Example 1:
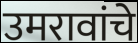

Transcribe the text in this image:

उमरावांचे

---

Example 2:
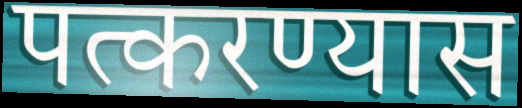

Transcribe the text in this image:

पत्करण्यास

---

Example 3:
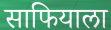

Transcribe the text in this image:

साफियाला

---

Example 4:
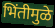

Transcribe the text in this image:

भिंतीमुळे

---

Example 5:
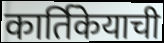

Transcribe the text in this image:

कार्तिकेयाची